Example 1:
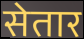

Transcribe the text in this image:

सेतार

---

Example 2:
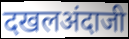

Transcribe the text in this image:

दखलअंदाजी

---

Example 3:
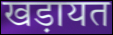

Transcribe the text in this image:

खड़ायत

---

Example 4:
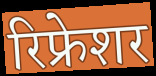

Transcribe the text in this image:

रिफ्रेशर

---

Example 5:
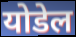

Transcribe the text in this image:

योडेल